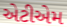
એટીએમ